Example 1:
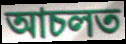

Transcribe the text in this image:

আচলত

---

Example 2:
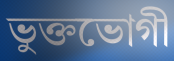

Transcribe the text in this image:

ভুক্তভোগী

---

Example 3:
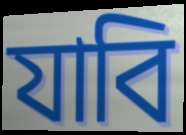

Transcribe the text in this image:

যাবি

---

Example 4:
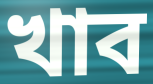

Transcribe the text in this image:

খাব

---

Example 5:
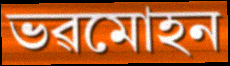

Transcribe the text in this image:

ভৱমোহন